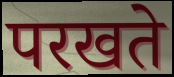
परखते